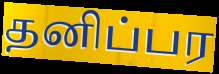
தனிப்பர